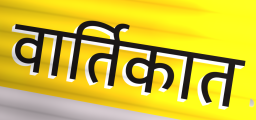
वार्तिकात